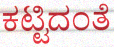
ಕಟ್ಟಿದಂತೆ